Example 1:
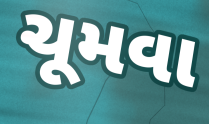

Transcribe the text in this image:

ચૂમવા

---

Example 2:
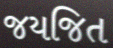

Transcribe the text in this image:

જયજિત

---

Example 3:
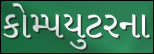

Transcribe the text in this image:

કોમ્પયુટરના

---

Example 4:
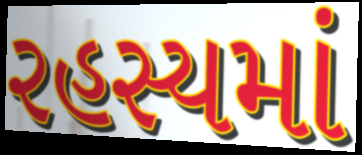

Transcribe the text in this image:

રહસ્યમાં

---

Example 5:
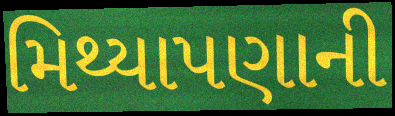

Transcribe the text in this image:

મિથ્યાપણાની